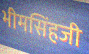
भीमसिंहजी